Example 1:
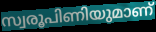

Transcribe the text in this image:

സ്വരൂപിണിയുമാണ്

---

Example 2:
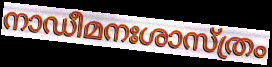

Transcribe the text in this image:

നാഡീമനഃശാസ്ത്രം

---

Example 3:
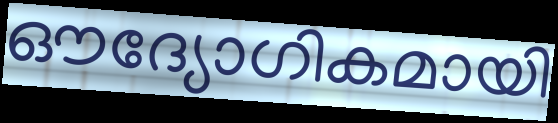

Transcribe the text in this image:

ഔദ്യോഗികമായി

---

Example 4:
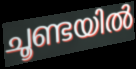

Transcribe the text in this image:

ചൂണ്ടയിൽ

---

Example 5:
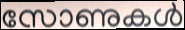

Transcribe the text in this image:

സോണുകൾ